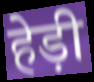
हेड़ी